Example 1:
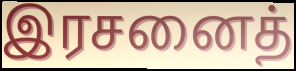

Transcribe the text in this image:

இரசனைத்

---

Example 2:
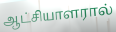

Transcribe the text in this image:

ஆட்சியாளரால்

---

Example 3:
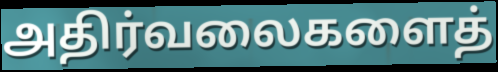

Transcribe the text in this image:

அதிர்வலைகளைத்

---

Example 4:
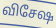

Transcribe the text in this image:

விசேஷ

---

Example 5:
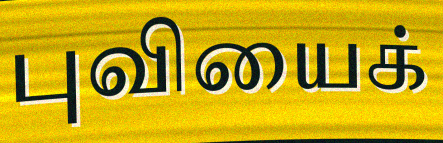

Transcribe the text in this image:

புவியைக்